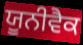
ਯੂਨੀਵੈਕ